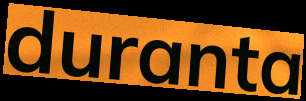
duranta